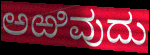
ಅಱಿವುದು